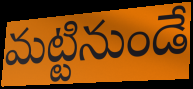
మట్టినుండే